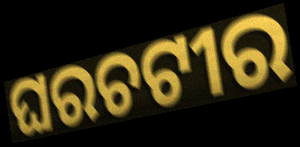
ଘରଚଟୀର